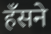
हँसने